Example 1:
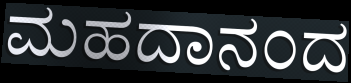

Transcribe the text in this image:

ಮಹದಾನಂದ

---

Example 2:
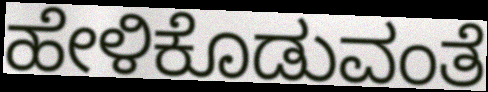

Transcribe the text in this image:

ಹೇಳಿಕೊಡುವಂತೆ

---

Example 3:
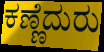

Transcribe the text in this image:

ಕಣ್ಣೆದುರು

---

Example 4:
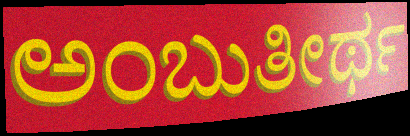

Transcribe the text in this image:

ಅಂಬುತೀರ್ಥ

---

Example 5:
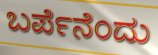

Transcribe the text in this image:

ಬರ್ಪೆನೆಂದು